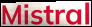
Mistral